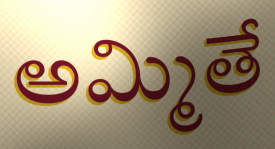
అమ్మితే